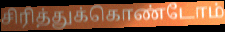
சிரித்துக்கொண்டோம்